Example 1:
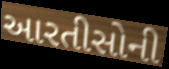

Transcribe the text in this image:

આરતીસોની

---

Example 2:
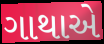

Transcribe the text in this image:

ગાથાએ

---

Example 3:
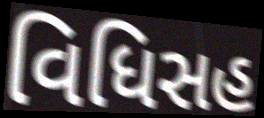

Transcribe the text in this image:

વિધિસહ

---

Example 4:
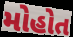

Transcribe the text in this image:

મોહોત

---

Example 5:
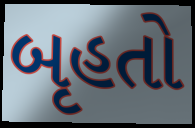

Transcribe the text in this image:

બૃહતો